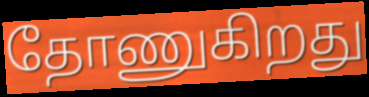
தோணுகிறது